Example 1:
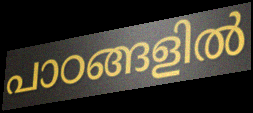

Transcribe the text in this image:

പാഠങ്ങളിൽ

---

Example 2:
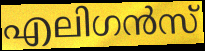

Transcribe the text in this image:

എലിഗൻസ്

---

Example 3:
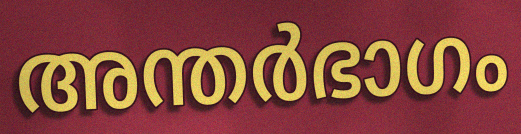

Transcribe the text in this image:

അന്തർഭാഗം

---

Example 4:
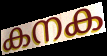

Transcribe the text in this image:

കനക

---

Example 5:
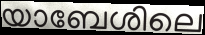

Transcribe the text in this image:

യാബേശിലെ